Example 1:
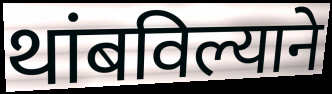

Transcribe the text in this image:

थांबविल्याने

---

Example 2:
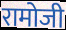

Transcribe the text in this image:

रामोजी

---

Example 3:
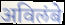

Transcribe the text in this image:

अविलंबे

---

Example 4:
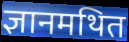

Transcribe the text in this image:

ज्ञानमथित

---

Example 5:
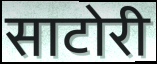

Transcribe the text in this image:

साटोरी